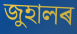
জুহালৰ